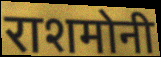
राशमोनी